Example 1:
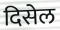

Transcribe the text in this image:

दिसेल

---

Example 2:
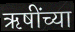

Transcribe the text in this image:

ऋषींच्या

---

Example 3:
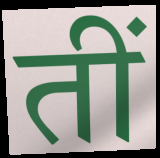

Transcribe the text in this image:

तीं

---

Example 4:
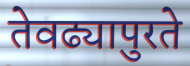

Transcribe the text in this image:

तेवढ्यापुरते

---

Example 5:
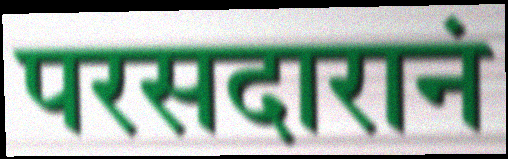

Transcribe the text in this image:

परसदारानं